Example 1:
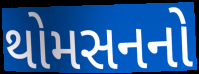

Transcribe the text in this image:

થોમસનનો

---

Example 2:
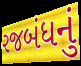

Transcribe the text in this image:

રજબંધનું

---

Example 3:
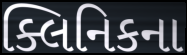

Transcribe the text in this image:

ક્લિનિકના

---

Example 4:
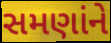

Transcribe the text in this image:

સમણાંને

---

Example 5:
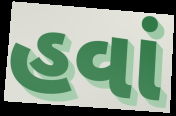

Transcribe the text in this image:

હવાં